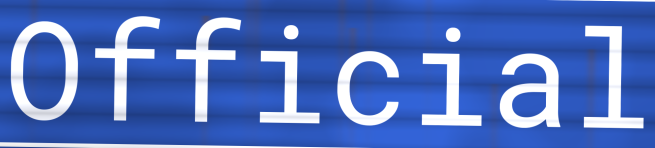
Official